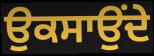
ਉਕਸਾਉਂਦੇ